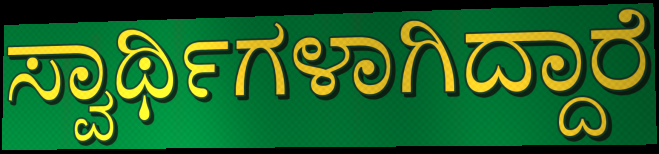
ಸ್ವಾರ್ಥಿಗಳಾಗಿದ್ದಾರೆ